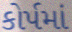
કોર્પમાં